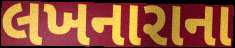
લખનારાના